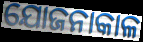
ଯୋଜନାକାଳ